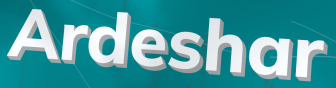
Ardeshar